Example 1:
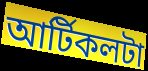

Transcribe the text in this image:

আর্টিকলটা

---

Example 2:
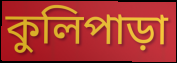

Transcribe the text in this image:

কুলিপাড়া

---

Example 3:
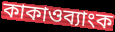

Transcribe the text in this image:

কাকাওব্যাংক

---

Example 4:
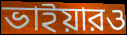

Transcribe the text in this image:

ভাইয়ারও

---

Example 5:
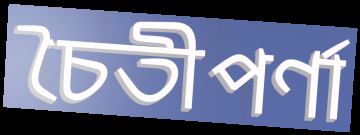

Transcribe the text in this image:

চৈতীপর্ণা